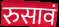
रुसावं